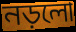
নড়লো